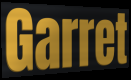
Garret